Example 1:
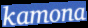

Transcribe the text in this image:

kamona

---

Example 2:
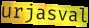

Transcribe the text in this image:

urjasval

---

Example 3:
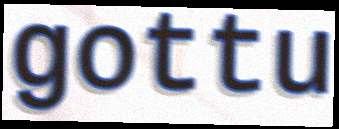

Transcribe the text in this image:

gottu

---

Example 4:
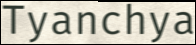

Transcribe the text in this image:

Tyanchya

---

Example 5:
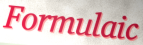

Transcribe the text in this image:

Formulaic